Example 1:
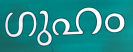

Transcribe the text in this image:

ഗുഹം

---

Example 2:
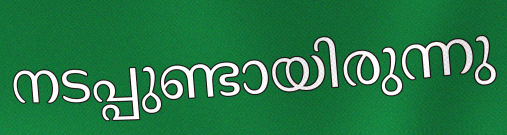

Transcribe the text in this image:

നടപ്പുണ്ടായിരുന്നു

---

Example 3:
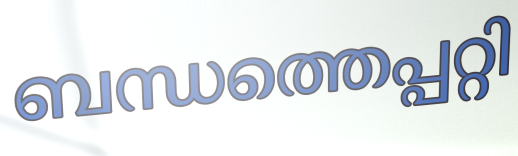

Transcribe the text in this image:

ബന്ധത്തെപ്പറ്റി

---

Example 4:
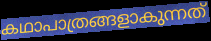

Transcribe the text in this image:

കഥാപാത്രങ്ങളാകുന്നത്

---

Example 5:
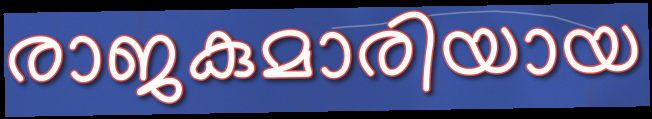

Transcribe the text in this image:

രാജകുമാരിയായ